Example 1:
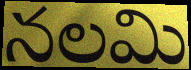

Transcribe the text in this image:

నలమి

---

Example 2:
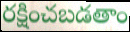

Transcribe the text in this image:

రక్షించబడతాం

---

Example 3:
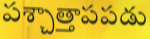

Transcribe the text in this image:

పశ్చాత్తాపపడు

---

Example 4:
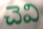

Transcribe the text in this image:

చెవి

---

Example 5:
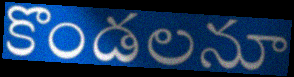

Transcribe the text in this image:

కొండలనూ